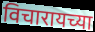
विचारायच्या